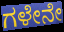
ಗಳೇನೇ